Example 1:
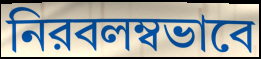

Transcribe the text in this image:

নিরবলম্বভাবে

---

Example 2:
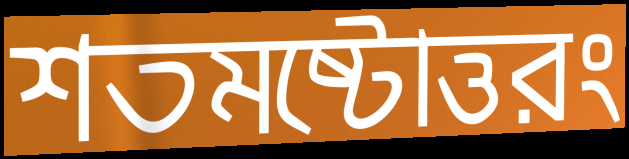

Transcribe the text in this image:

শতমষ্টোত্তরং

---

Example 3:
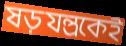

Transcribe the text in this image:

ষড়যন্ত্রকেই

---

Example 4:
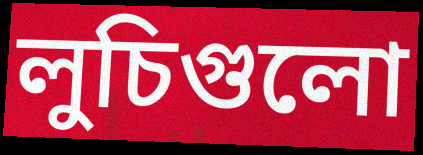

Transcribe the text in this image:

লুচিগুলো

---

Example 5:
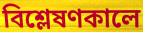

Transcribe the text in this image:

বিশ্লেষণকালে